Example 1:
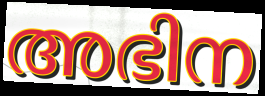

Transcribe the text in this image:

അഭിന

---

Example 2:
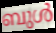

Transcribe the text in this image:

ബുൾ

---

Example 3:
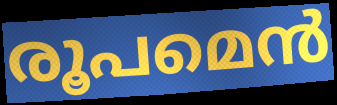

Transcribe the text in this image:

രൂപമെൻ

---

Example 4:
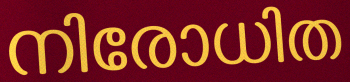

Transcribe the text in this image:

നിരോധിത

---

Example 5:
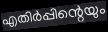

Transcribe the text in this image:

എതിർപ്പിന്റെയും